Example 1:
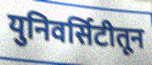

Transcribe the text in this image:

युनिवर्सिटीतून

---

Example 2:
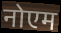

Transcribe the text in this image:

नोएम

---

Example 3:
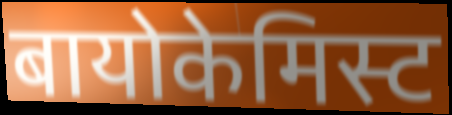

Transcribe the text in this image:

बायोकेमिस्ट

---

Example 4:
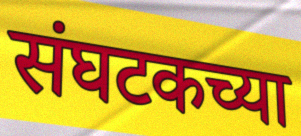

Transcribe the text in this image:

संघटकच्या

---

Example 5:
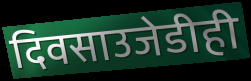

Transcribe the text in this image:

दिवसाउजेडीही